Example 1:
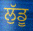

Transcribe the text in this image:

ਲੁੱਡੂ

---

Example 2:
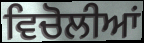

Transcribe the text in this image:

ਵਿਚੋਲੀਆਂ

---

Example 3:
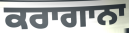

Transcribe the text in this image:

ਕਰਾਗਾਨਾ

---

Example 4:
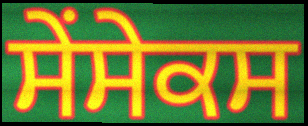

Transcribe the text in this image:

ਸੇਂਸੇਕਸ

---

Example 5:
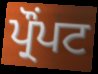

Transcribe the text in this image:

ਪ੍ਰੌੰਪਟ